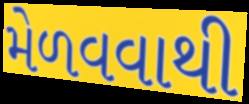
મેળવવાથી